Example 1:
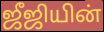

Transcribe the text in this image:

ஜீஜியின்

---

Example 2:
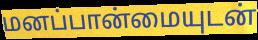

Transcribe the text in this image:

மனப்பான்மையுடன்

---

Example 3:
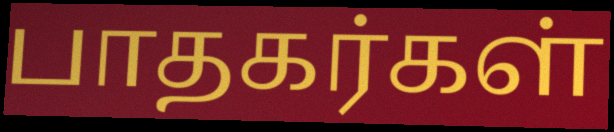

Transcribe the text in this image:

பாதகர்கள்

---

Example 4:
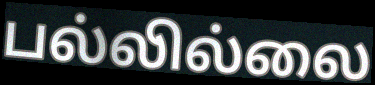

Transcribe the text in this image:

பல்லில்லை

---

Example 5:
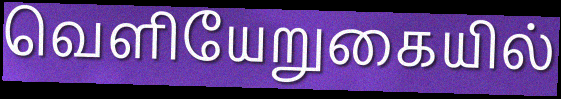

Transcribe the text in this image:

வெளியேறுகையில்